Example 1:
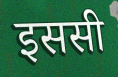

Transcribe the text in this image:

इससी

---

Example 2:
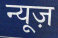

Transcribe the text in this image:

न्‍यूज़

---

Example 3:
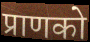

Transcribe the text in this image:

प्राणको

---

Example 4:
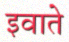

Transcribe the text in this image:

इवाते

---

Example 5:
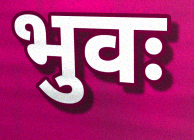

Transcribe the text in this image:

भुवः